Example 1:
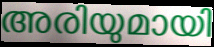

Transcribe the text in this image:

അരിയുമായി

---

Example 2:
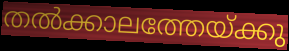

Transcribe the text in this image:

തൽക്കാലത്തേയ്ക്കു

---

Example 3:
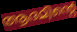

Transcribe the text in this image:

ആദമിന്റെ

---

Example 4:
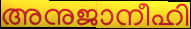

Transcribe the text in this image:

അനുജാനീഹി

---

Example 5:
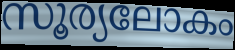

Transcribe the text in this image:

സൂര്യലോകം